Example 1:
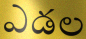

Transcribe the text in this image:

ఎడల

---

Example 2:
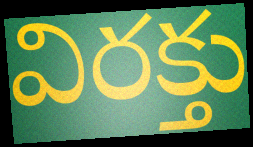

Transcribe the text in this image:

విరక్తు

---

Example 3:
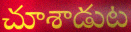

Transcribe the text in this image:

చూశాడుట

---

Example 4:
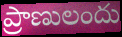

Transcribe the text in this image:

ప్రాణులందు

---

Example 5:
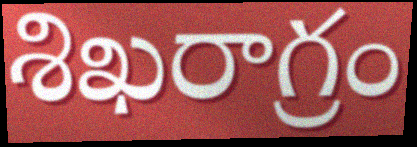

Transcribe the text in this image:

శిఖరాగ్రం